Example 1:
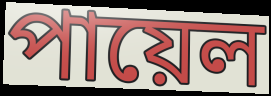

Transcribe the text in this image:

পায়েল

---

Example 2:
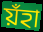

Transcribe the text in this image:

য়ঁহা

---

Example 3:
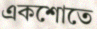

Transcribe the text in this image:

একশোতে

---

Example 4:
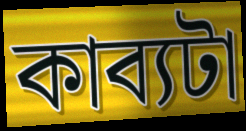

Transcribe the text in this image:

কাব্যটা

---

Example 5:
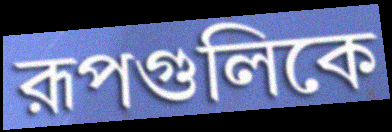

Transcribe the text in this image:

রূপগুলিকে